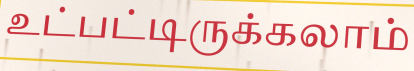
உட்பட்டிருக்கலாம்